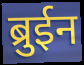
ब्रुईन